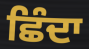
ਛਿੰਦਾ